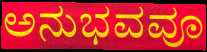
ಅನುಭವವೂ